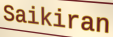
Saikiran